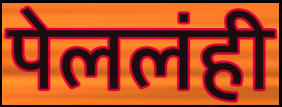
पेललंही